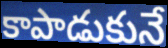
కాపాడుకునే